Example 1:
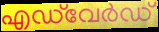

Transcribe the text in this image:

എഡ്‌വേർഡ്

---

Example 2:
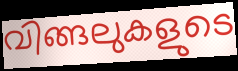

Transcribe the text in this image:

വിങ്ങലുകളുടെ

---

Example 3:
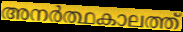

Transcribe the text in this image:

അനർത്ഥകാലത്ത്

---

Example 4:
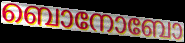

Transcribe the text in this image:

ബൊനോബോ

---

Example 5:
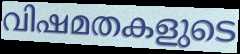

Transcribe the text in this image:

വിഷമതകളുടെ